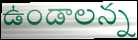
ఉండాలన్న